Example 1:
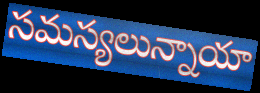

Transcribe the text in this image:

సమస్యలున్నాయా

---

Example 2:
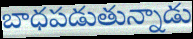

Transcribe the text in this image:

బాధపడుతున్నాడు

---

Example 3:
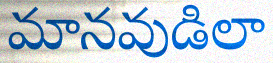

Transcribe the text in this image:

మానవుడిలా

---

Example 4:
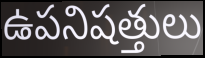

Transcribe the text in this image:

ఉపనిషత్తులు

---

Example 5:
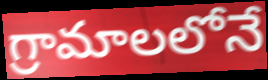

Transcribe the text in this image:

గ్రామాలలోనే